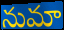
నుమా